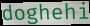
doghehi